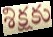
శిక్షకు